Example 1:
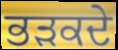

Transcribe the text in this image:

ਭੜਕਦੇ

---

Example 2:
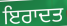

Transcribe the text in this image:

ਇਰਾਦਤ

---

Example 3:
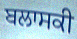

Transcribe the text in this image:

ਬਲਾਸਕੀ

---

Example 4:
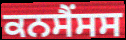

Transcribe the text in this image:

ਕਨਸੈਂਸਸ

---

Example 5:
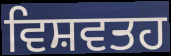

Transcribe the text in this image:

ਵਿਸ਼ਵਤਹ